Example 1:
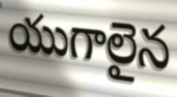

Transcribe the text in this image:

యుగాలైన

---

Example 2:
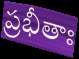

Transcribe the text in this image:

ప్రభీతాః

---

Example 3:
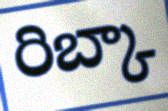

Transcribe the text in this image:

రిబ్కా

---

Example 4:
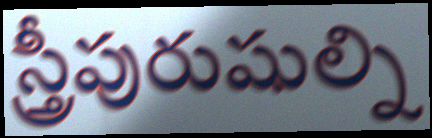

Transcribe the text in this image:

స్త్రీపురుషుల్ని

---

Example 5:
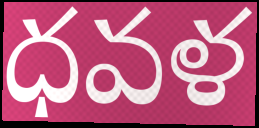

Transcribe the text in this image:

ధవళ